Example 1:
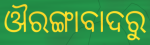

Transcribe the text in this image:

ଔରଙ୍ଗାବାଦରୁ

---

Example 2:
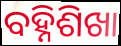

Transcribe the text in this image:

ବହ୍ନିଶିଖା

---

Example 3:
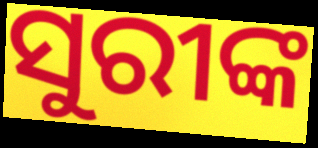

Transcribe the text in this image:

ସୁରୀଙ୍କ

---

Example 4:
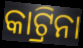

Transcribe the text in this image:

କାଟ୍ରିନା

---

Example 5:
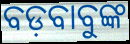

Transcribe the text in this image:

ବଡ଼ବାବୁଙ୍କ